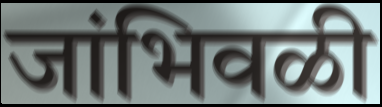
जांभिवळी